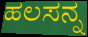
ಹಲಸನ್ನ